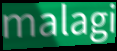
malagi